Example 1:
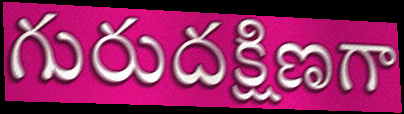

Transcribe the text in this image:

గురుదక్షిణగా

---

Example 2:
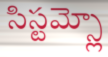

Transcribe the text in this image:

సిస్టమ్స్లో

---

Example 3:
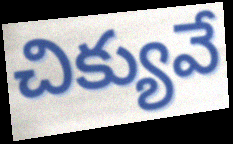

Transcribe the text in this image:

చిక్యువే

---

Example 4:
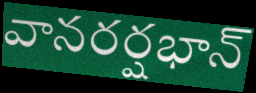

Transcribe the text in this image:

వానరర్షభాన్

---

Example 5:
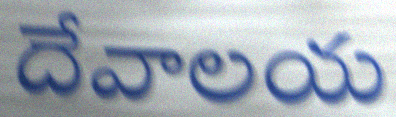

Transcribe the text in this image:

దేవాలయ